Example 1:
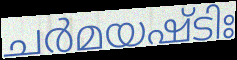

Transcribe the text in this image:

ചർമയഷ്ടിഃ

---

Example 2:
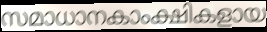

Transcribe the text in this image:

സമാധാനകാംക്ഷികളായ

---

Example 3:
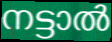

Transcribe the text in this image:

നട്ടാൽ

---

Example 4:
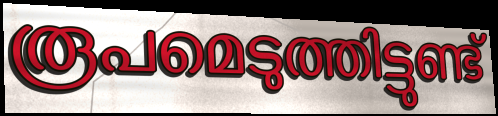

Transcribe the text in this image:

രൂപമെടുത്തിട്ടുണ്ട്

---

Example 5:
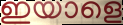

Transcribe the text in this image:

ഇയാളെ